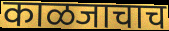
काळजाचाच